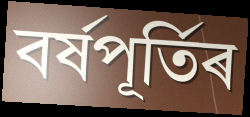
বৰ্ষপূৰ্তিৰ